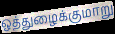
ஒத்துழைக்குமாறு